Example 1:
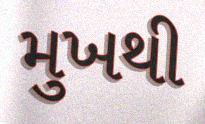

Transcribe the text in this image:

મુખથી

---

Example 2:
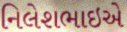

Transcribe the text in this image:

નિલેશભાઇએ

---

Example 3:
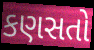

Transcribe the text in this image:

કણસતો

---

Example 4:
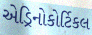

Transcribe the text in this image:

એડ્રિનોકોર્ટિકલ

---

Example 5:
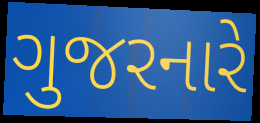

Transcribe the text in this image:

ગુજરનારે